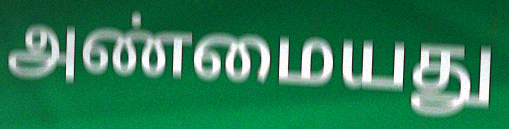
அண்மையது